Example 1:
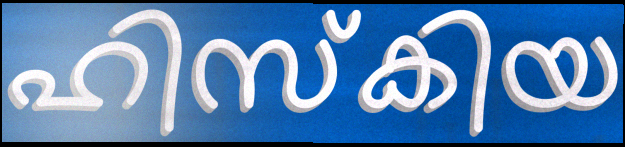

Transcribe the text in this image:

ഹിസ്കിയ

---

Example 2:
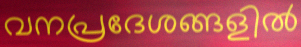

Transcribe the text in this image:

വനപ്രദേശങ്ങളിൽ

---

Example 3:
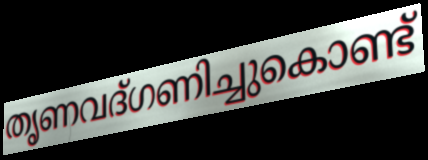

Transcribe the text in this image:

തൃണവദ്ഗണിച്ചുകൊണ്ട്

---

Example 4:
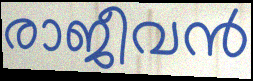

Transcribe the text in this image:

രാജീവൻ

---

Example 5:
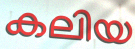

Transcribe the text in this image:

കലിയ